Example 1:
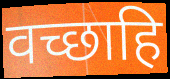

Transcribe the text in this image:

वच्छाहि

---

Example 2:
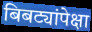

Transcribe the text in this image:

बिबट्यांपेक्षा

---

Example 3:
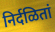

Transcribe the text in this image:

निर्दळितां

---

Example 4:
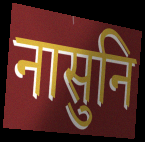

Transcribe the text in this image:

नासुनि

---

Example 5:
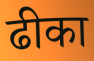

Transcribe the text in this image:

ढीका